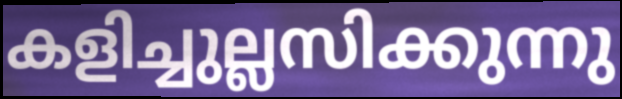
കളിച്ചുല്ലസിക്കുന്നു